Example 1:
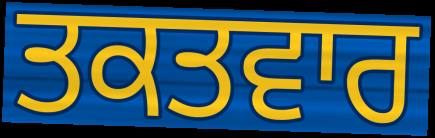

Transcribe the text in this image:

ਤਕਤਵਾਰ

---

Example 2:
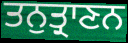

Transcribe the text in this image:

ਤਨੁਤ੍ਰਾਣਨ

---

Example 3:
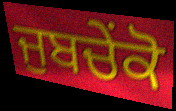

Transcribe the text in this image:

ਜੁਬਚੇਂਕੋ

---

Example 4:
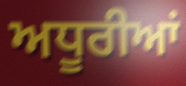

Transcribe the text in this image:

ਅਧੂਰੀਆਂ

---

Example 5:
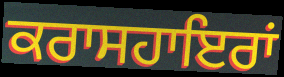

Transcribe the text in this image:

ਕਰਾਸਹਾਇਰਾਂ